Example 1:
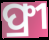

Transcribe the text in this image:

ଫ୍ରୀ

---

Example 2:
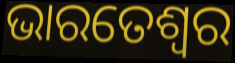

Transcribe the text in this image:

ଭାରତେଶ୍ୱର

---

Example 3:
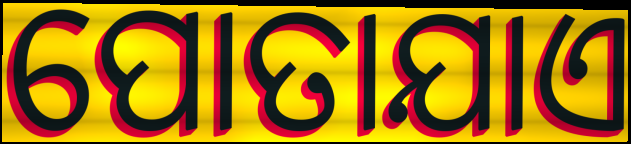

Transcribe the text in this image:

ପୋତାଯାଏ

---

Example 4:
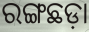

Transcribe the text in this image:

ରଙ୍ଗଛଡ଼ା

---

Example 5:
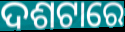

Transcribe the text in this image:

ଦଶଟାରେ